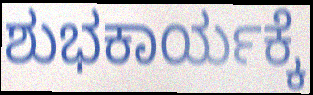
ಶುಭಕಾರ್ಯಕ್ಕೆ